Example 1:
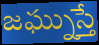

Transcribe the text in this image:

జఘ్నుస్తే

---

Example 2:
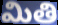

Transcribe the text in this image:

మితి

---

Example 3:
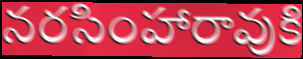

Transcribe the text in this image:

నరసింహారావుకి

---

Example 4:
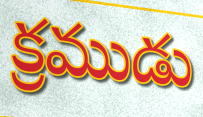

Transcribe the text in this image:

క్రముడు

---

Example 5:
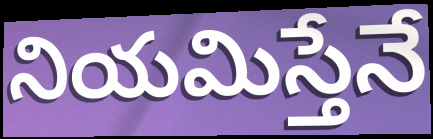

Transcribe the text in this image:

నియమిస్తేనే